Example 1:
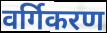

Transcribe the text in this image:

वर्गिकरण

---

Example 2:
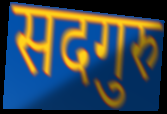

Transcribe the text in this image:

सदगुरु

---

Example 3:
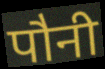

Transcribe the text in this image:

पौनी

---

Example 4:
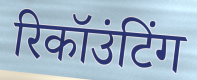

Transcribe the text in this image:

रिकॉउंटिंग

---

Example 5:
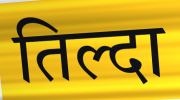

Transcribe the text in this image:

तिल्दा